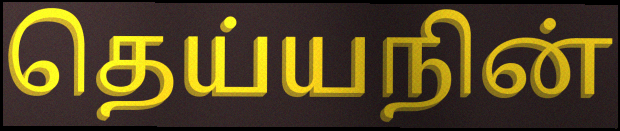
தெய்யநின்